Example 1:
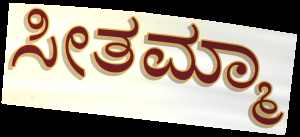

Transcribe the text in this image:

ಸೀತಮ್ಮಾ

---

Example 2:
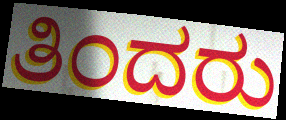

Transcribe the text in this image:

ತಿಂದರು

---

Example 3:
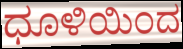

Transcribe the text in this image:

ಧೂಳಿಯಿಂದ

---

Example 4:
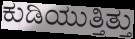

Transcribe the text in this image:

ಕುಡಿಯುತ್ತಿತ್ತು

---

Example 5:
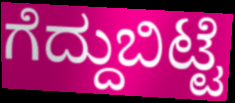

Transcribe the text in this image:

ಗೆದ್ದುಬಿಟ್ಟೆ